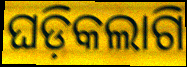
ଘଡ଼ିକଲାଗି